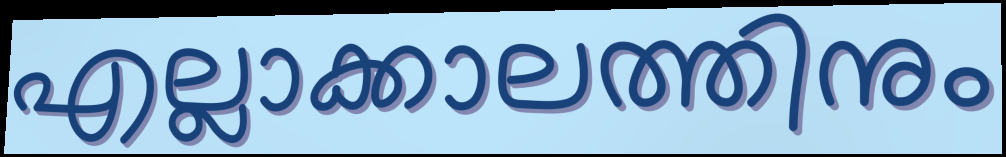
എല്ലാക്കാലത്തിനും